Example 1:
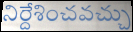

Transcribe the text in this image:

నిర్దేశించవచ్చు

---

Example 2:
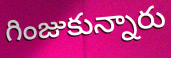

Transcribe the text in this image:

గింజుకున్నారు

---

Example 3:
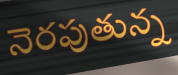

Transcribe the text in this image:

నెరపుతున్న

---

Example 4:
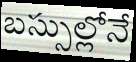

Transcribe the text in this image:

బస్సుల్లోనే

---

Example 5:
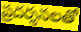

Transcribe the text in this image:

ప్రదర్శనలతో